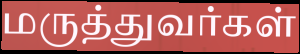
மருத்துவர்கள்